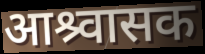
आश्र्वासक